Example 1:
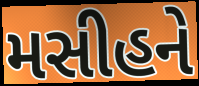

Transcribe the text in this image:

મસીહને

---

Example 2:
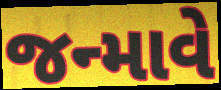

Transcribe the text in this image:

જન્માવે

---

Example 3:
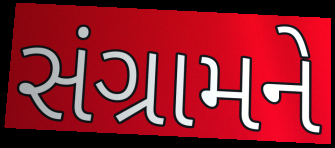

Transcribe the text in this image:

સંગ્રામને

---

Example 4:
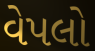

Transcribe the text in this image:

વેપલો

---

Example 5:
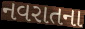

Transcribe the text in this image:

નવરાતના